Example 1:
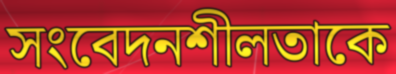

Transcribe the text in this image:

সংবেদনশীলতাকে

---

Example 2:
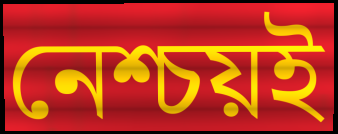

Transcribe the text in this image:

নেশ্চয়ই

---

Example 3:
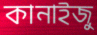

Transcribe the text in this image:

কানাইজু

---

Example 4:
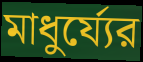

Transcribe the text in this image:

মাধুর্য্যের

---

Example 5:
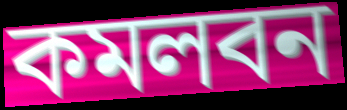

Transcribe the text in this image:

কমলবন